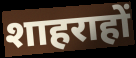
शाहराहों